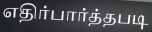
எதிர்பார்த்தபடி